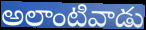
అలాంటివాడు